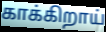
காக்கிறாய்